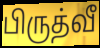
பிருத்வீ